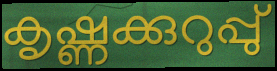
കൃഷ്ണക്കുറുപ്പു്